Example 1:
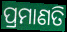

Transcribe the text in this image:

ପ୍ରମାଣତି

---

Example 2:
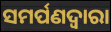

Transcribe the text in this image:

ସମର୍ପଣଦ୍ୱାରା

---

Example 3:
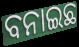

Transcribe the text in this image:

ବନାଇଛ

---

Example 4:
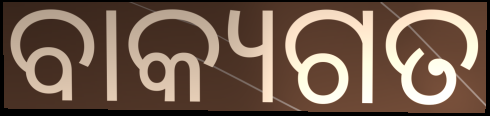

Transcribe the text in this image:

ବାକ୍ୟଗତ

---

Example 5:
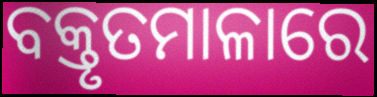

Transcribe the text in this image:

ବକ୍ତୃତମାଳାରେ